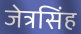
जेत्रसिंह